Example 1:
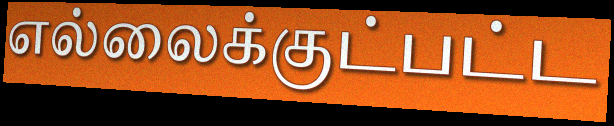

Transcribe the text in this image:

எல்லைக்குட்பட்ட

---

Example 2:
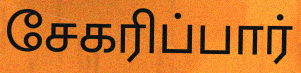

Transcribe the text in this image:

சேகரிப்பார்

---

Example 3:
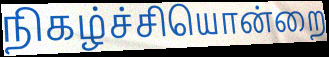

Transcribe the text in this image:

நிகழ்ச்சியொன்றை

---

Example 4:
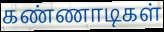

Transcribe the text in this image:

கண்ணாடிகள்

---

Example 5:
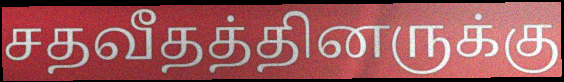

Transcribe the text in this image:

சதவீதத்தினருக்கு